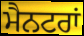
ਮੈਨਟਰਾਂ